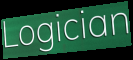
Logician